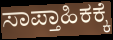
ಸಾಪ್ತಾಹಿಕಕ್ಕೆ